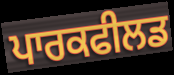
ਪਾਰਕਫੀਲਡ